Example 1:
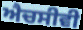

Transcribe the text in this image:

ਐਚਸੀਵੀ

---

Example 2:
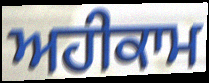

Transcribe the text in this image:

ਅਹੀਕਾਮ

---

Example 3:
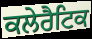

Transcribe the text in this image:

ਕਲੇਰੈਟਿਕ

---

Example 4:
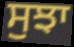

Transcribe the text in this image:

ਸੁਝਾ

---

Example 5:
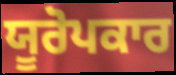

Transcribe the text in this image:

ਯੂਰੋਪਕਾਰ